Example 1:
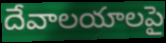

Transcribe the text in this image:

దేవాలయాలపై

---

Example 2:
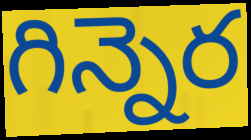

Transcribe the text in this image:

గిన్నెర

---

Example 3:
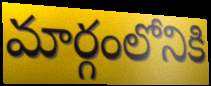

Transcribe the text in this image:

మార్గంలోనికి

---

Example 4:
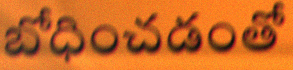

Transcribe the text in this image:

బోధించడంతో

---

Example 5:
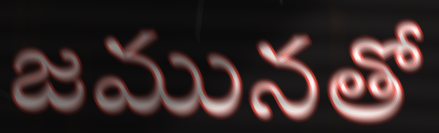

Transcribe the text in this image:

జమునతో